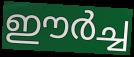
ഈർച്ച